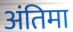
अंतिमा